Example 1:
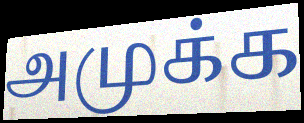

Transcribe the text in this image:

அமுக்க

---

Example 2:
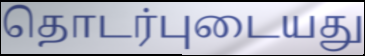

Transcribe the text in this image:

தொடர்புடையது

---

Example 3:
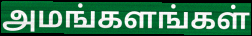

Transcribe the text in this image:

அமங்களங்கள்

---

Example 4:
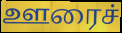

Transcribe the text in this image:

ஊரைச்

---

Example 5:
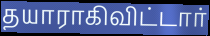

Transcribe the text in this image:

தயாராகிவிட்டார்